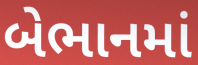
બેભાનમાં